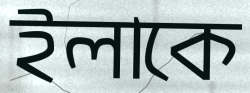
ইলাকে